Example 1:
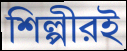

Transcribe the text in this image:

শিল্পীরই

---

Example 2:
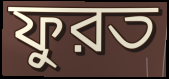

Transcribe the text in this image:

ফুরত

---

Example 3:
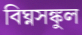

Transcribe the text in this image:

বিঘ্নসঙ্কুল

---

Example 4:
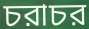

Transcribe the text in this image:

চরাচর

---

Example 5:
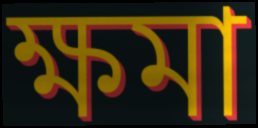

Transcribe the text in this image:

ক্ষমা